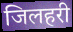
जिलहरी